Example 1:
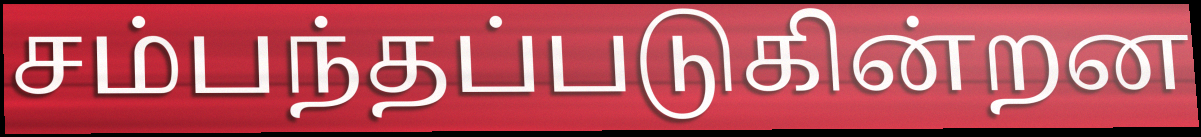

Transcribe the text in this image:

சம்பந்தப்படுகின்றன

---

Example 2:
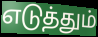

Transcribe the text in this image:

எடுத்தும்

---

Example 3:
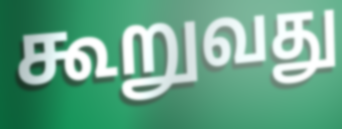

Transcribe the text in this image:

கூறுவது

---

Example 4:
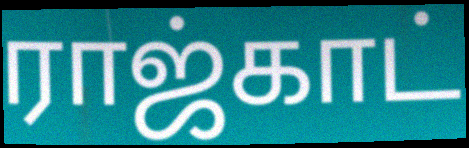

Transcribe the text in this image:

ராஜ்காட்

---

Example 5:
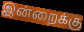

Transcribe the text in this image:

இன்றைக்கு